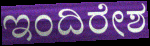
ಇಂದಿರೇಶ